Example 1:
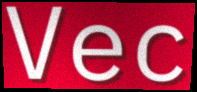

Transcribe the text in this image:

Vec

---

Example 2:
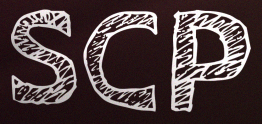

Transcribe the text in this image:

SCP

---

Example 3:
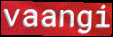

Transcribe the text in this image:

vaangi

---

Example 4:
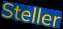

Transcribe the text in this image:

Steller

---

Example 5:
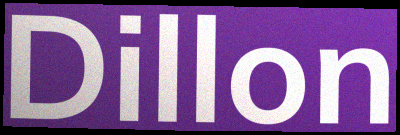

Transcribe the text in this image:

Dillon